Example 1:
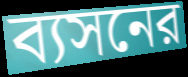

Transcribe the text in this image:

ব্যসনের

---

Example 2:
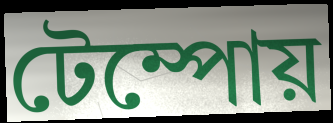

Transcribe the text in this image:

টেম্পোয়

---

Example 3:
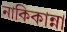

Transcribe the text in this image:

নাকিকান্না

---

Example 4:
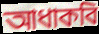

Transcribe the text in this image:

আধাকবি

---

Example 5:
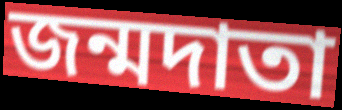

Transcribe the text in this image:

জন্মদাতা